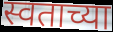
स्वताच्या